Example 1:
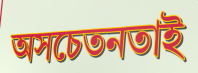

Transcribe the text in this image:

অসচেতনতাই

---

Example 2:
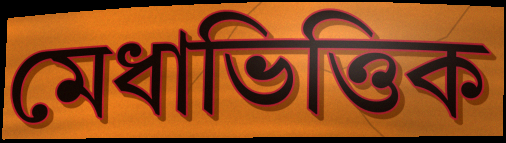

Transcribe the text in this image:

মেধাভিত্তিক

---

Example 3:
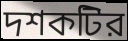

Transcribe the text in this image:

দশকটির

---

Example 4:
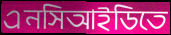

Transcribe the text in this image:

এনসিআইডিতে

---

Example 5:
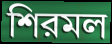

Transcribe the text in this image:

শিরমল